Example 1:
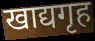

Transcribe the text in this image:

खाद्यगृह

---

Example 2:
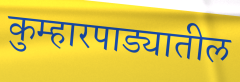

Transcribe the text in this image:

कुम्हारपाड्यातील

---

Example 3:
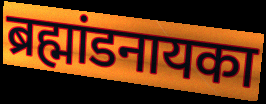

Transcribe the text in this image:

ब्रह्मांडनायका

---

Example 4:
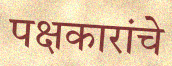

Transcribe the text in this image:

पक्षकारांचे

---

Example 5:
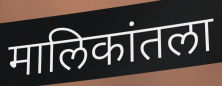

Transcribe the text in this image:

मालिकांतला